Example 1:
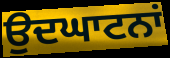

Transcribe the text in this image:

ਉਦਘਾਟਨਾਂ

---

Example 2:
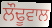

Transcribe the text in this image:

ਲੌਢੂਵਾਲ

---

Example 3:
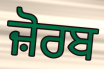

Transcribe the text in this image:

ਜ਼ੋਰਬ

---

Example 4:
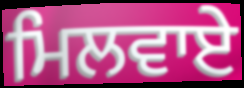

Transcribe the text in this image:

ਮਿਲਵਾਏ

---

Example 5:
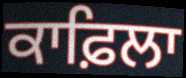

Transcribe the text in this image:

ਕਾਫ਼ਿਲਾ